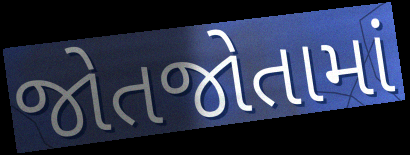
જોતજોતામાં